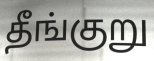
தீங்குறு